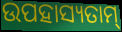
ଉପହାସ୍ୟତାମ୍